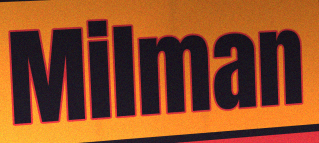
Milman